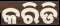
କରିଡି